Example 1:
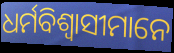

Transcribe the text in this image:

ଧର୍ମବିଶ୍ଵାସୀମାନେ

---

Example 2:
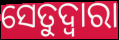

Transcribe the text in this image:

ସେତୁଦ୍ୱାରା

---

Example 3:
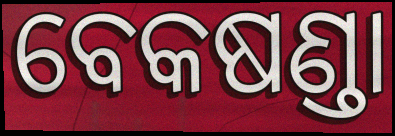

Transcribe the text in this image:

ବେକଷଣ୍ଡା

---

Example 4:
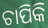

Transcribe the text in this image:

ଚାପିକି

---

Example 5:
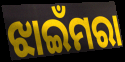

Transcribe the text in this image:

ଝାଇଁମରା